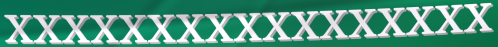
xxxxxxxxxxxxxxxxx